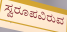
ಸ್ವರೂಪವಿರುವ